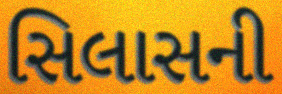
સિલાસની